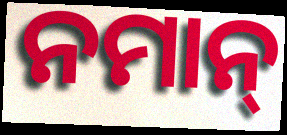
ନମାନ୍